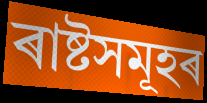
ৰাষ্টসমূহৰ